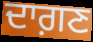
ਦਾਗ਼ਣ